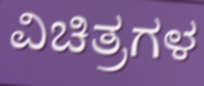
ವಿಚಿತ್ರಗಳ